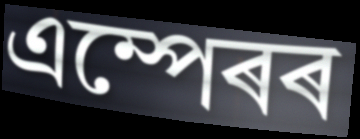
এম্পেৰৰ